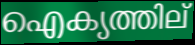
ഐക്യത്തില്